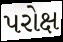
પરોક્ષ